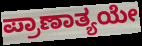
ಪ್ರಾಣಾತ್ಯಯೇ